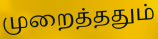
முறைத்ததும்